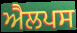
ਐਲਪਸ